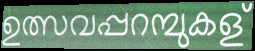
ഉത്സവപ്പറമ്പുകള്